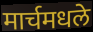
मार्चमधले